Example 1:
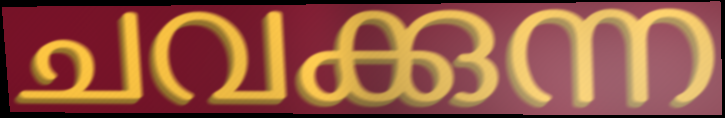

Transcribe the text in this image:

ചവക്കുന്ന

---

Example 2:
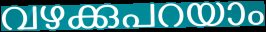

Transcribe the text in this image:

വഴക്കുപറയാം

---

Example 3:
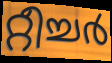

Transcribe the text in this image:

റ്റീച്ചർ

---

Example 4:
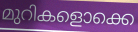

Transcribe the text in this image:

മുറികളൊക്കെ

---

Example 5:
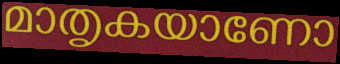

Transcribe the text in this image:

മാതൃകയാണോ